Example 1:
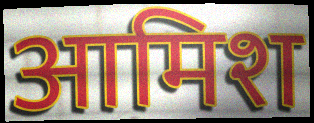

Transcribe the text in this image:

आमिश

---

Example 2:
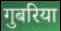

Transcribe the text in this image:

गुबरिया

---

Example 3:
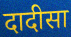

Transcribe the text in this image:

दादीसा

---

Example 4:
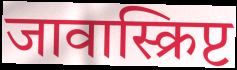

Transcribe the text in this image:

जावास्क्रिप्ट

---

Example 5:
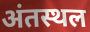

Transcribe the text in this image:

अंतस्थल